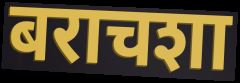
बराचशा